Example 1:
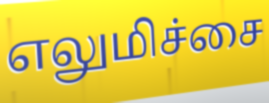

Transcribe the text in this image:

எலுமிச்சை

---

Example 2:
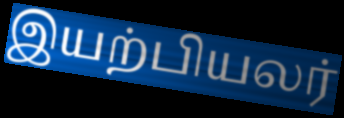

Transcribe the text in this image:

இயற்பியலர்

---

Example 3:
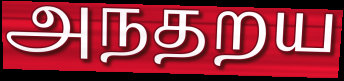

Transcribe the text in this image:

அநதறய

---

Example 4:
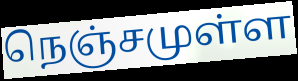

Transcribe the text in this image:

நெஞ்சமுள்ள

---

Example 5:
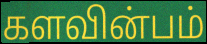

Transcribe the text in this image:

களவின்பம்